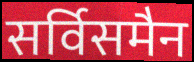
सर्विसमैन